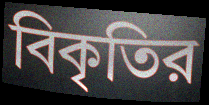
বিকৃতির